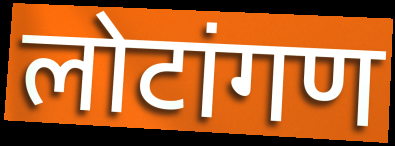
लोटांगण